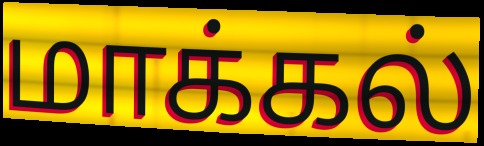
மாக்கல்